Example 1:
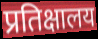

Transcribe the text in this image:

प्रतिक्षालय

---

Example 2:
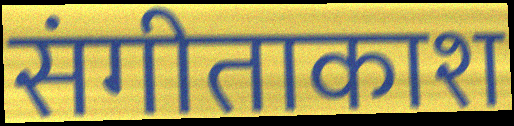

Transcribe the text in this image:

संगीताकाश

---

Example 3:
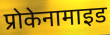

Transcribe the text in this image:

प्रोकेनामाइड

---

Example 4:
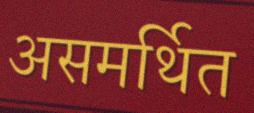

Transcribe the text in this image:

असमर्थित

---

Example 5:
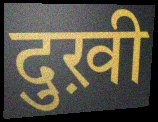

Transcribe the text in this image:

दुख़ी